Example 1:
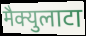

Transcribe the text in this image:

मैक्युलाटा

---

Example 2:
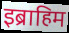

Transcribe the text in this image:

इब्राहिम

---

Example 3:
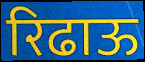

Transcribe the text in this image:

रिढाऊ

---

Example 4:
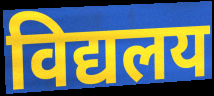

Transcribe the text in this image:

विद्यलय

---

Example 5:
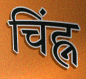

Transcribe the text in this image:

चिंह्न